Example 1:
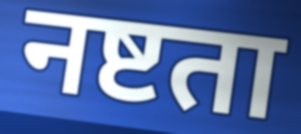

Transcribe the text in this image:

नष्टता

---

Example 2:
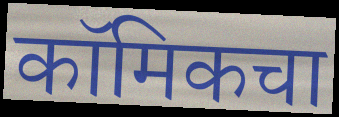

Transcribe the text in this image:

कॉमिकचा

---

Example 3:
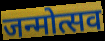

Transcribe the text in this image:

जन्मोत्सव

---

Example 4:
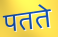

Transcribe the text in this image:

पतते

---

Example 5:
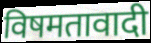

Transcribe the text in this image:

विषमतावादी